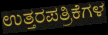
ಉತ್ತರಪತ್ರಿಕೆಗಳ